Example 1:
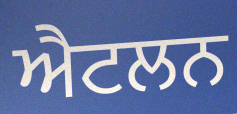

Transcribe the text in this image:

ਐਟਲਨ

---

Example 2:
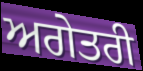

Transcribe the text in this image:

ਅਗੇਤਰੀ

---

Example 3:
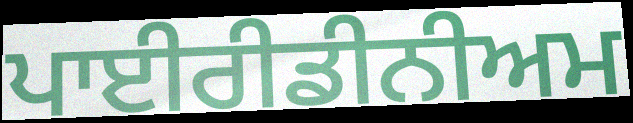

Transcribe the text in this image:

ਪਾਈਰੀਡੀਨੀਅਮ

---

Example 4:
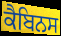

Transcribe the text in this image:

ਕੈਬਿਨਸ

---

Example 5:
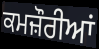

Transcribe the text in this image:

ਕਮਜ਼ੌਰੀਆਂ